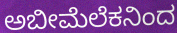
ಅಬೀಮೆಲೆಕನಿಂದ